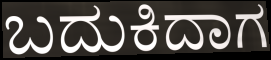
ಬದುಕಿದಾಗ